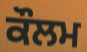
ਕੌਲਮ